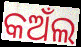
କଅଁଲ